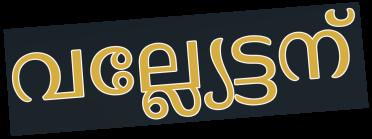
വല്ല്യേട്ടന്